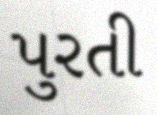
પુરતી